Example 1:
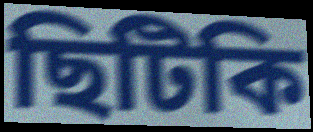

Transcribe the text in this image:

ছিটিকি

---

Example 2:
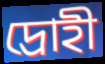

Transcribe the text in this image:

দ্ৰোহী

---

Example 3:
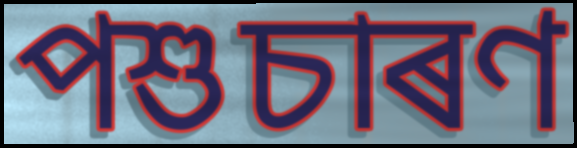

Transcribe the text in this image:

পশুচাৰণ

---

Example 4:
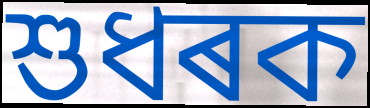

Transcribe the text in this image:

শুধৰক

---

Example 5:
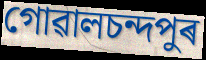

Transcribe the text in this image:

গোৱালচন্দপুৰ